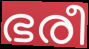
ഭരീ